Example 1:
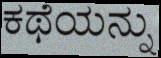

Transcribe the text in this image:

ಕಥೆಯನ್ನು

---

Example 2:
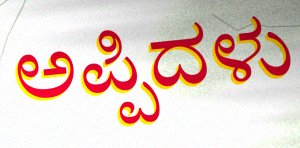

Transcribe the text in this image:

ಅಪ್ಪಿದಳು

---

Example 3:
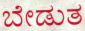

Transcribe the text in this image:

ಬೇಡುತ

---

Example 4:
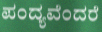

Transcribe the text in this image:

ಪಂದ್ಯವೆಂದರೆ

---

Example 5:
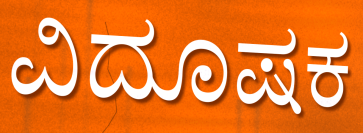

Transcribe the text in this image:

ವಿದೂಷಕ